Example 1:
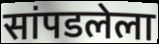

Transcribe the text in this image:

सांपडलेला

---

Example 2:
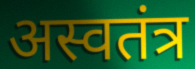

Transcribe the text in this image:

अस्वतंत्र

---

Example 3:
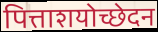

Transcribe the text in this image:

पित्ताशयोच्छेदन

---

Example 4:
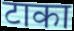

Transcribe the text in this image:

टाका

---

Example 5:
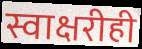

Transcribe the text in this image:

स्वाक्षरीही